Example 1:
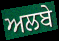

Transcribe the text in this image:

ਅਲਬੇ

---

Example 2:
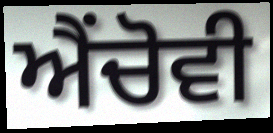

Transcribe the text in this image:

ਐਂਚੋਵੀ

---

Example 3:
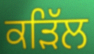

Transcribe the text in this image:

ਕੜਿੱਲ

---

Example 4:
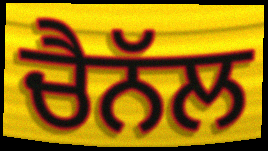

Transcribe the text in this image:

ਚੈਨੱਲ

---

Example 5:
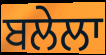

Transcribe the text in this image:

ਬਲੇਲਾ